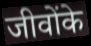
जीवोंके